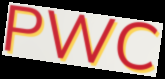
PWC